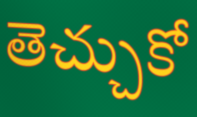
తెచ్చుకో